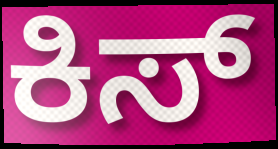
ಕಿಸ್